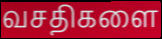
வசதிகளை